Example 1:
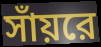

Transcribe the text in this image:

সাঁয়রে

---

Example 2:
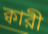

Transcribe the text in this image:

ক্বারী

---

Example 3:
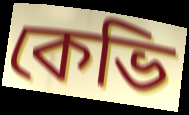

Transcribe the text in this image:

কেভি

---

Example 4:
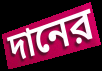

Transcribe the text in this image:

দানের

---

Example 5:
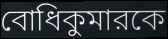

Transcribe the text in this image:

বোধিকুমারকে